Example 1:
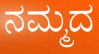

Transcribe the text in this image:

ನಮ್ಮದ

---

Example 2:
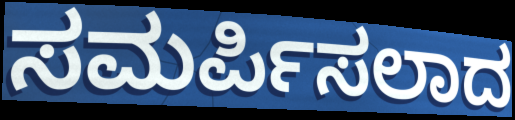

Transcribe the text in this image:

ಸಮರ್ಪಿಸಲಾದ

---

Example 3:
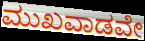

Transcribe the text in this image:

ಮುಖವಾಡವೇ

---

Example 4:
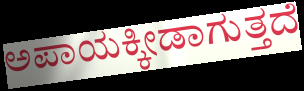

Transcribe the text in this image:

ಅಪಾಯಕ್ಕೀಡಾಗುತ್ತದೆ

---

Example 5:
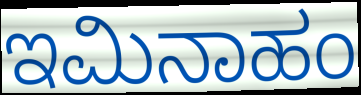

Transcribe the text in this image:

ಇಮಿನಾಹಂ